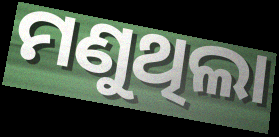
ମଣୁଥିଲା